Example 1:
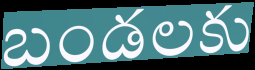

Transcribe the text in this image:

బండలకు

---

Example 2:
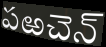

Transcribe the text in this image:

పఱచెన్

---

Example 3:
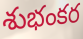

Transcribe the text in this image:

శుభంకర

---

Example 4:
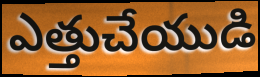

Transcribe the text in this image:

ఎత్తుచేయుడి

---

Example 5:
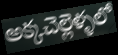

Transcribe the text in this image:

అక్కచెల్లెళ్ళలో